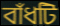
বাঁধটি